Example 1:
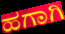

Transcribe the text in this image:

ಹಗಾಗಿ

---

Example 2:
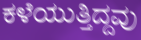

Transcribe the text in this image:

ಕಳೆಯುತ್ತಿದ್ದವು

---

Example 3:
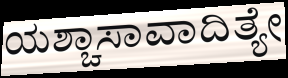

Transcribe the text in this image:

ಯಶ್ಚಾಸಾವಾದಿತ್ಯೇ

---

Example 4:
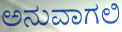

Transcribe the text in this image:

ಅನುವಾಗಲಿ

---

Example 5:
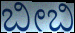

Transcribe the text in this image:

ಬೀಬಿ